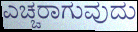
ಎಚ್ಚರಾಗುವುದು